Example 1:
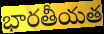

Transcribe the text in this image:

భారతీయత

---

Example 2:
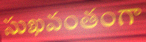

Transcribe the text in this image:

సుఖవంతంగా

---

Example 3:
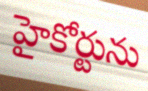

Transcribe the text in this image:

హైకోర్టును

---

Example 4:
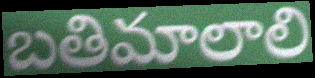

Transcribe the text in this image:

బతిమాలాలి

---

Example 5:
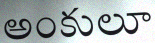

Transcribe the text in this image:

అంకులూ